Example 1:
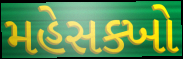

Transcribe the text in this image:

મહેસક્ખો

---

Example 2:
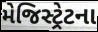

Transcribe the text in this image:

મેજિસ્ટ્રેટના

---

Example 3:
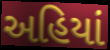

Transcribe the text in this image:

અહિયાં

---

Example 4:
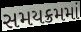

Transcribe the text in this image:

સમયક્રમમાં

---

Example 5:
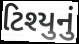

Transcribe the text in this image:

ટિશ્યુનું